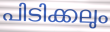
പിടിക്കലും